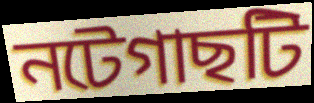
নটেগাছটি